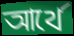
আর্থে